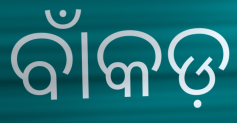
ବାଁକଡ଼